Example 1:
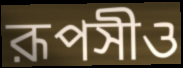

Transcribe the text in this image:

রূপসীও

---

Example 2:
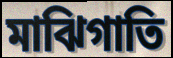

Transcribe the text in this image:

মাঝিগাতি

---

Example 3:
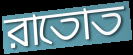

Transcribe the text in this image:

রাতোত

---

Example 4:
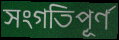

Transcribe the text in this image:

সংগতিপূর্ণ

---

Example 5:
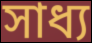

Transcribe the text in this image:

সাধ্য